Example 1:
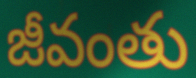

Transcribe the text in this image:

జీవంతు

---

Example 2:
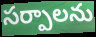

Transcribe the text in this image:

సర్పాలను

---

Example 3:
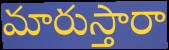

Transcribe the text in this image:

మారుస్తారా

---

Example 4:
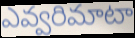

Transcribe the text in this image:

ఎవ్వరిమాటా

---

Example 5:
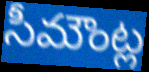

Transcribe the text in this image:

సీమౌంట్ల